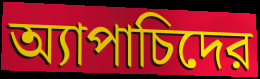
অ্যাপাচিদের